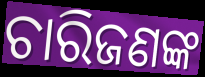
ଚାରିଜଣଙ୍କ